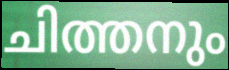
ചിത്തനും